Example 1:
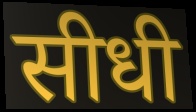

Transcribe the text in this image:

सीधी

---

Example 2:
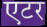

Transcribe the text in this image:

एटर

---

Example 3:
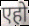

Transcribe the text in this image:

एहो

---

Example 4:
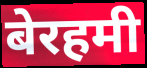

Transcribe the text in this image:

बेरहमी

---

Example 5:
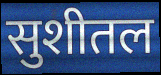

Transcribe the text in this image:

सुशीतल